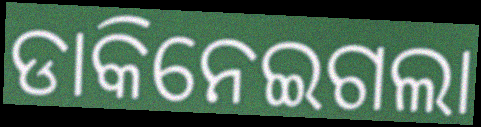
ଡାକିନେଇଗଲା